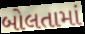
બોલતામાં